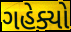
ગહેક્યો